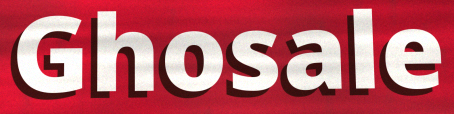
Ghosale